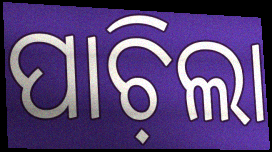
ପାଚ଼ିଲା